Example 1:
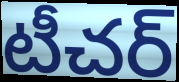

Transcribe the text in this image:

టీచర్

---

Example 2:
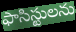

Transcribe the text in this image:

ఫాసిస్టులను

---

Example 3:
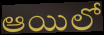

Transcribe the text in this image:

ఆయిలో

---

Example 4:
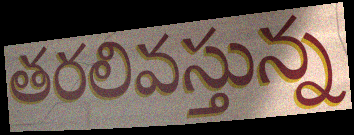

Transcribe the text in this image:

తరలివస్తున్న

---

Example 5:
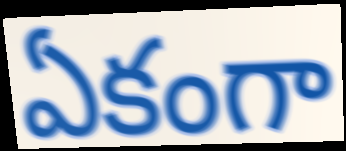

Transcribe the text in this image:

ఏకంగా